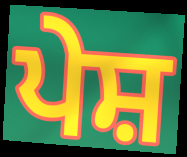
ਪੇਸ਼